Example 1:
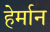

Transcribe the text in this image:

हेर्मान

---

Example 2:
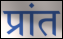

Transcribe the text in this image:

प्रांत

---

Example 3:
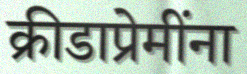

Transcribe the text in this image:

क्रीडाप्रेमींना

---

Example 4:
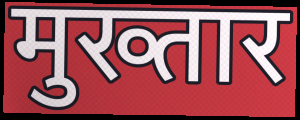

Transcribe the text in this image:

मुख्तार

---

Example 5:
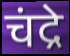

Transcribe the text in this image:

चंद्रे